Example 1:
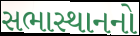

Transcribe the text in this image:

સભાસ્થાનનો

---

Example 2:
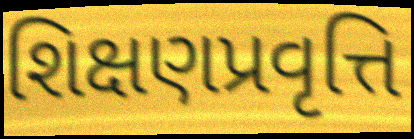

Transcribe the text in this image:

શિક્ષણપ્રવૃત્તિ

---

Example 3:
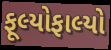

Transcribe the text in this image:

ફૂલ્યોફાલ્યો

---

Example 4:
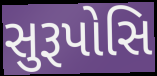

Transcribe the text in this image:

સુરૂપોસિ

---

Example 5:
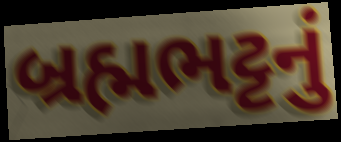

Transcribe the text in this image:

બ્રહ્મભટ્ટનું